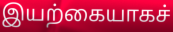
இயற்கையாகச்